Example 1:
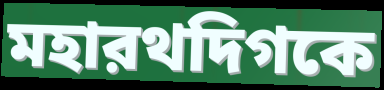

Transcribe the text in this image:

মহারথদিগকে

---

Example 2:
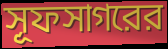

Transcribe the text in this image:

সূফসাগরের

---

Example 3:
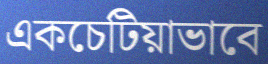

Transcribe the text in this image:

একচেটিয়াভাবে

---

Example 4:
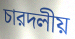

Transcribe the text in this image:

চারদলীয়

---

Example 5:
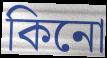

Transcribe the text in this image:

কিনো